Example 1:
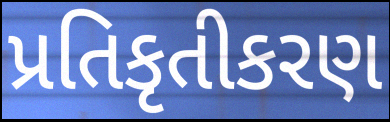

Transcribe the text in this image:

પ્રતિકૃતીકરણ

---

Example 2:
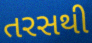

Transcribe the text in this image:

તરસથી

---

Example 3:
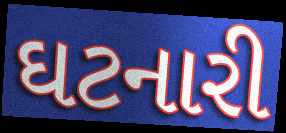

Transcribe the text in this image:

ઘટનારી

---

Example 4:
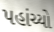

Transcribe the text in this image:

પહાંચ્યો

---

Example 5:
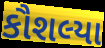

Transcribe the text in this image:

કૌશલ્યા